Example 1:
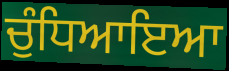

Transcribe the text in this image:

ਚੁੰਧਿਆਇਆ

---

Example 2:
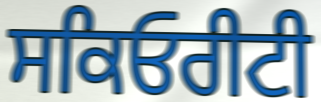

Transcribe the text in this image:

ਸਕਿਓਰੀਟੀ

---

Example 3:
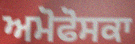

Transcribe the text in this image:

ਅਮੋਫੋਸਕਾ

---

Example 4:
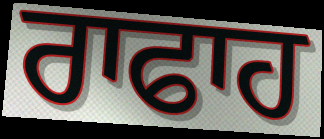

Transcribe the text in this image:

ਰਾਫਾਹ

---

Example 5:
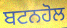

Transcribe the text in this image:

ਬਟਨਹੋਲ